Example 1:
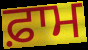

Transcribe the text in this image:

ਫ਼ਾਮ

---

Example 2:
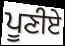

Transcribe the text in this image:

ਪੂਣੀਏ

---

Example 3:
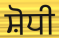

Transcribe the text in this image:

ਸ਼ੋਧੀ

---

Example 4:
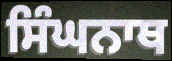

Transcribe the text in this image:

ਸਿੰਘਨਾਥ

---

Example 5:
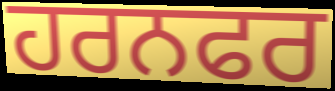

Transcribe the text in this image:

ਹਰਨਫਰ